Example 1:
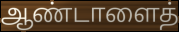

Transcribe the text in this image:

ஆண்டாளைத்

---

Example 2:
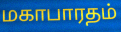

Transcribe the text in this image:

மகாபாரதம்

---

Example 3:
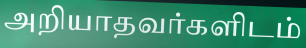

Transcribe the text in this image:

அறியாதவர்களிடம்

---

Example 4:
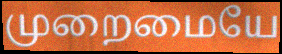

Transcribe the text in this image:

முறைமையே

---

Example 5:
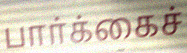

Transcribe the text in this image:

பார்க்கைச்